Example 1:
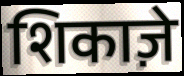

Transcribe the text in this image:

शिकाज़े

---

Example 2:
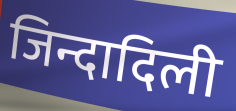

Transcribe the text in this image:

जिन्दादिली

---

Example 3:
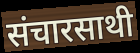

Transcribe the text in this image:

संचारसाथी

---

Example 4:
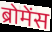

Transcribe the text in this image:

ब्रोमेंस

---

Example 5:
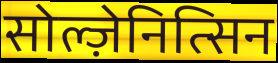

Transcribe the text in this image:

सोल्ज़ेनित्सिन